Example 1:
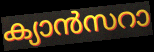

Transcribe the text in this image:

ക്യാൻസറാ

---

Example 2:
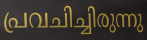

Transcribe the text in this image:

പ്രവചിച്ചിരുന്നു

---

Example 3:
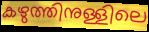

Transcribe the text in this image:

കഴുത്തിനുള്ളിലെ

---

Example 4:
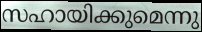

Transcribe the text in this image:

സഹായിക്കുമെന്നു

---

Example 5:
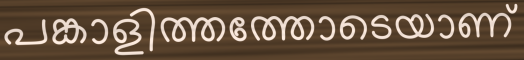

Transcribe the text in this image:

പങ്കാളിത്തത്തോടെയാണ്